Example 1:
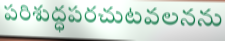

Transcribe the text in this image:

పరిశుద్ధపరచుటవలనను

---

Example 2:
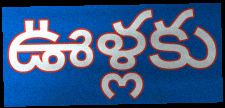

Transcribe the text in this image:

ఊళ్లకు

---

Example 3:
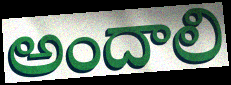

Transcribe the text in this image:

అందాలి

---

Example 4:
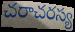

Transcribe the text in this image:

చరాచరస్య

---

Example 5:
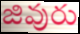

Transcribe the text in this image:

జివురు